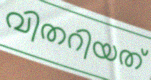
വിതറിയത്